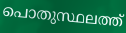
പൊതുസ്ഥലത്ത്